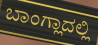
ಬಾಂಗ್ಲಾದಲ್ಲಿ